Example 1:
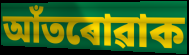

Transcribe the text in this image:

আঁতৰোৱাক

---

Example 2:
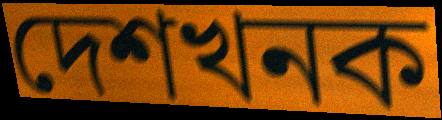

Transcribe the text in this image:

দেশখনক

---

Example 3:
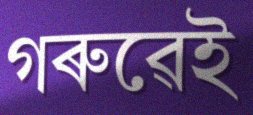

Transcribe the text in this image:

গৰুৱেই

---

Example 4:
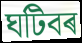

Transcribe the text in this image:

ঘটিবৰ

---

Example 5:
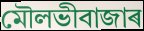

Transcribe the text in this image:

মৌলভীবাজাৰ